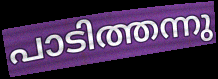
പാടിത്തന്നു